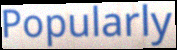
Popularly